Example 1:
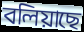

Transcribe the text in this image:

বলিয়াছে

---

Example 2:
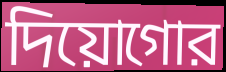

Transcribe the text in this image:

দিয়োগোর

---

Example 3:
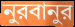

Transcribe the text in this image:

নুরবানুর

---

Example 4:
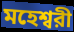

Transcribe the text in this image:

মহেশ্বরী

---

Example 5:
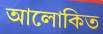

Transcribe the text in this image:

আলোকিত